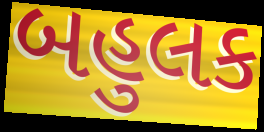
બહુલક